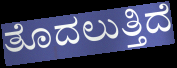
ತೊದಲುತ್ತಿದೆ